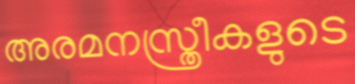
അരമനസ്ത്രീകളുടെ